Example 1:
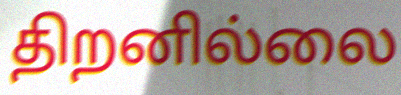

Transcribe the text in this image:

திறனில்லை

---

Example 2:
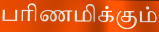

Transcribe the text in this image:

பரிணமிக்கும்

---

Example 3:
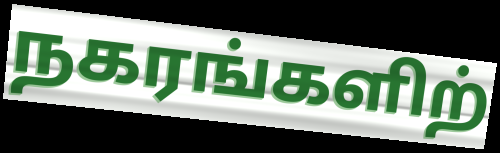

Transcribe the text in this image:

நகரங்களிற்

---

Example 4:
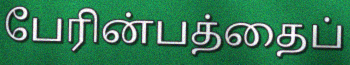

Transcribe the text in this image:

பேரின்பத்தைப்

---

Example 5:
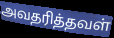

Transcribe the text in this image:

அவதரித்தவள்